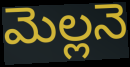
మెల్లనె